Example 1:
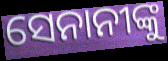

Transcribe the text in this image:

ସେନାନୀଙ୍କୁ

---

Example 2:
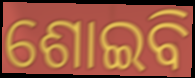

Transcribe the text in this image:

ଶୋଇବି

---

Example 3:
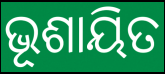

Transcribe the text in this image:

ଭୂଶାୟିତ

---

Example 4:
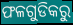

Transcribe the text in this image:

ଫଳଗୁଡିକରୁ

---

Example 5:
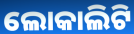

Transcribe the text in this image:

ଲୋକାଲିଟି